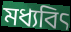
মধ্যবিৎ